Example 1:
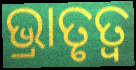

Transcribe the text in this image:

ଭ୍ରାତୃତ୍ଵ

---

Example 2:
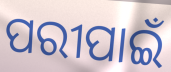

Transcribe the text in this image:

ପରୀପାଇଁ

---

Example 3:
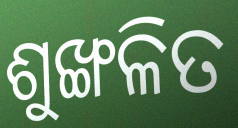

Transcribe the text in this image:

ଶୁଙ୍ଖଳିତ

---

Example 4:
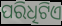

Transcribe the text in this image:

ପରିଧିଟିଏ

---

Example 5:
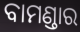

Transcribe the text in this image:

ବାମଣ୍ଡାର